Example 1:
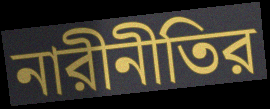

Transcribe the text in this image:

নারীনীতির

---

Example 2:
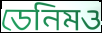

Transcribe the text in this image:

ডেনিমও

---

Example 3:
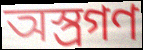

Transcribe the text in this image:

অস্ত্রগণ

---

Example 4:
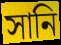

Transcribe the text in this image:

সানি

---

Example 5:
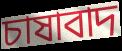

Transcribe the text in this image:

চাষাবাদ